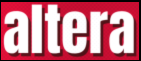
altera